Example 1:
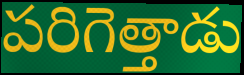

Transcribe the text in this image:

పరిగెత్తాడు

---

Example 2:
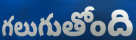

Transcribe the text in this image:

గలుగుతోంది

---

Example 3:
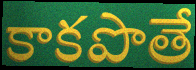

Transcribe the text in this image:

కాకపొతే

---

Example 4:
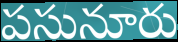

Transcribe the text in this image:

పసునూరు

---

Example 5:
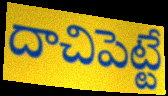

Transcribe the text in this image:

దాచిపెట్టే